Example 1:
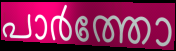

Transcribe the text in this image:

പാർത്തോ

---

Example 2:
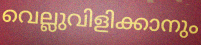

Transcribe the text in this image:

വെല്ലുവിളിക്കാനും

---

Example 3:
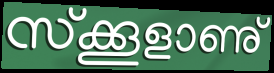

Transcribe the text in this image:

സ്ക്കൂളാണു്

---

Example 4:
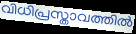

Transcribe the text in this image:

വിധിപ്രസ്താവത്തിൽ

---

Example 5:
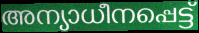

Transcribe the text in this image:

അന്യാധീനപ്പെട്ട്